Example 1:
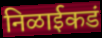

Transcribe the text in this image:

निळाईकडं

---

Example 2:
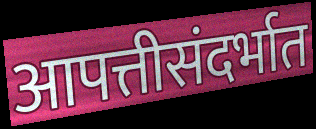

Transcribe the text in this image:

आपत्तीसंदर्भात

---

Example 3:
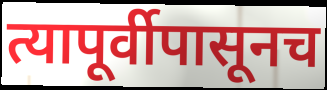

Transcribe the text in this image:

त्यापूर्वीपासूनच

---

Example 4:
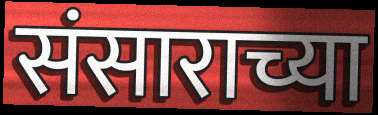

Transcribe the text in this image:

संसाराच्या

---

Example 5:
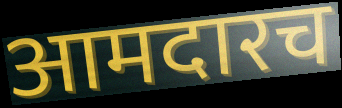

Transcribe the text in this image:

आमदारच